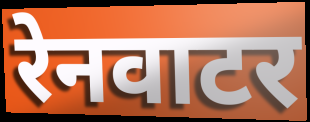
रेनवाटर